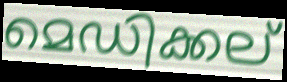
മെഡിക്കല്